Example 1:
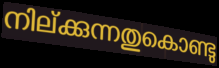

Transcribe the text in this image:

നില്ക്കുന്നതുകൊണ്ടു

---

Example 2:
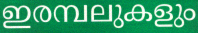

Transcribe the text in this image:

ഇരമ്പലുകളും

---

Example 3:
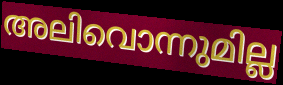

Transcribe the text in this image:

അലിവൊന്നുമില്ല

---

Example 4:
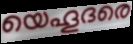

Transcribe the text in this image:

യെഹൂദരെ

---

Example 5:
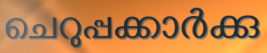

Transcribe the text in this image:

ചെറുപ്പക്കാർക്കു